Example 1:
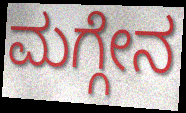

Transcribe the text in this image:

ಮಗ್ಗೇನ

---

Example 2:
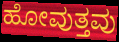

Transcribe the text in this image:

ಹೋವುತ್ತವು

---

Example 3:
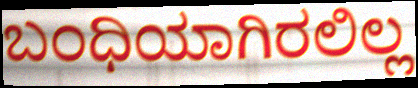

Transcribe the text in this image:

ಬಂಧಿಯಾಗಿರಲಿಲ್ಲ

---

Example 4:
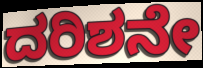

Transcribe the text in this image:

ದರಿಶನೇ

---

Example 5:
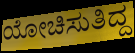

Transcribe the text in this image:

ಯೋಚಿಸುತಿದ್ದ